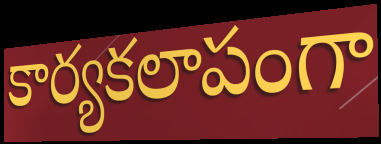
కార్యకలాపంగా